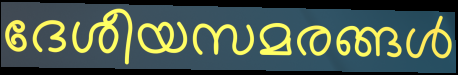
ദേശീയസമരങ്ങൾ